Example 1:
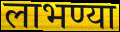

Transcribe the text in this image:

लाभण्या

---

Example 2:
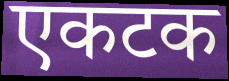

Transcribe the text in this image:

एकटक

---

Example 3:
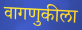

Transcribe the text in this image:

वागणुकीला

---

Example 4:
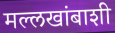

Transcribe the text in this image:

मल्लखांबाशी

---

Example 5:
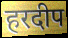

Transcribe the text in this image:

हरदीप